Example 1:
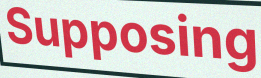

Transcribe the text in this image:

Supposing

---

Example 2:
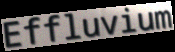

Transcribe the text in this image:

Effluvium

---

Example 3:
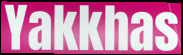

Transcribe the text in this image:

Yakkhas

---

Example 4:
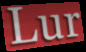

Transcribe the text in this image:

Lur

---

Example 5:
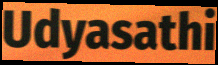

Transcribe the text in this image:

Udyasathi